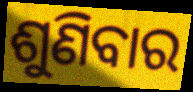
ଶୁଣିବାର